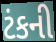
ટંકની